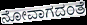
ನೋವಾಗದಂತೆ